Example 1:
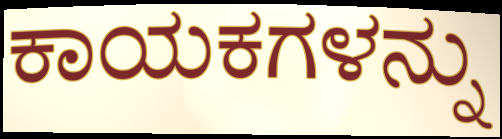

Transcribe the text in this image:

ಕಾಯಕಗಳನ್ನು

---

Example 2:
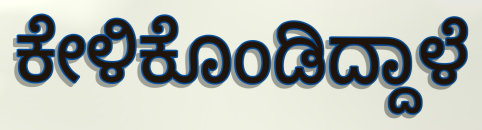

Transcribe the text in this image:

ಕೇಳಿಕೊಂಡಿದ್ದಾಳೆ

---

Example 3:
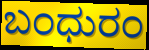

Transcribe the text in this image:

ಬಂಧುರಂ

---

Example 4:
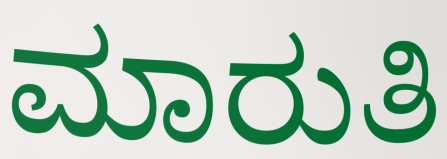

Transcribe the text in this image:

ಮಾರುತಿ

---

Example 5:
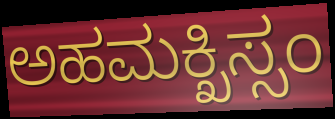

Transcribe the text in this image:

ಅಹಮಕ್ಖಿಸ್ಸಂ